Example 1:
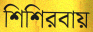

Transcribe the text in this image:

শিশিরবায়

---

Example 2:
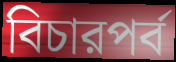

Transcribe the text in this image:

বিচারপর্ব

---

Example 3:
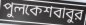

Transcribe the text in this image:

পুলকেশবাবুর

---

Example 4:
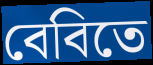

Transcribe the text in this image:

বেবিতে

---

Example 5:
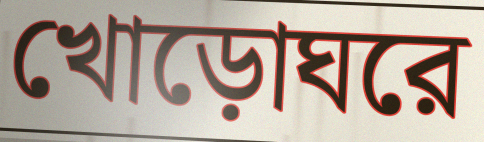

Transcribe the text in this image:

খোড়োঘরে